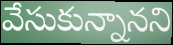
వేసుకున్నానని